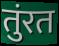
तुंरत